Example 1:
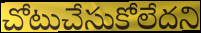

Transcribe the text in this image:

చోటుచేసుకోలేదని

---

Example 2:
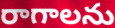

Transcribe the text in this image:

రాగాలను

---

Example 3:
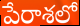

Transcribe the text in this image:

పేరాశలో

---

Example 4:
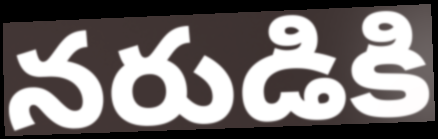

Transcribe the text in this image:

నరుడికి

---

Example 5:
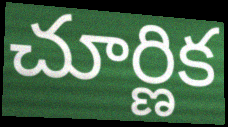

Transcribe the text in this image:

చూర్ణిక